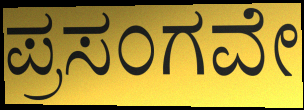
ಪ್ರಸಂಗವೇ